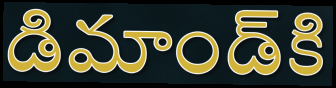
డిమాండ్‌కి